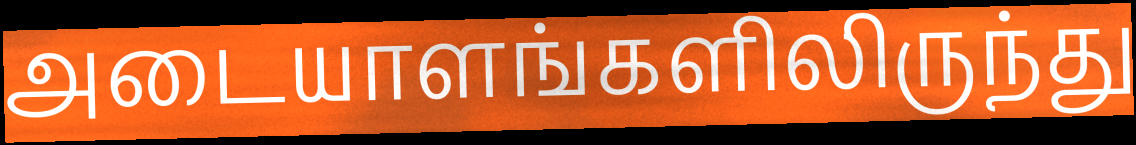
அடையாளங்களிலிருந்து